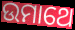
ଉମାଥେ